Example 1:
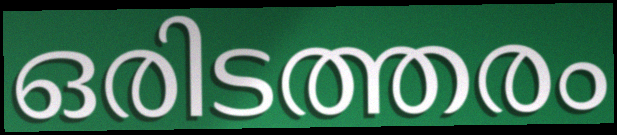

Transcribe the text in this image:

ഒരിടത്തരം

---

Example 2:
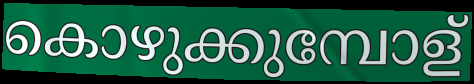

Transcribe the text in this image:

കൊഴുക്കുമ്പോള്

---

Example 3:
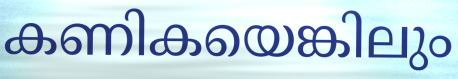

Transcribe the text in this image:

കണികയെങ്കിലും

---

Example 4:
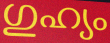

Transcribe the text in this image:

ഗുഹ്യം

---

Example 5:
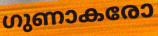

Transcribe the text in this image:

ഗുണാകരോ